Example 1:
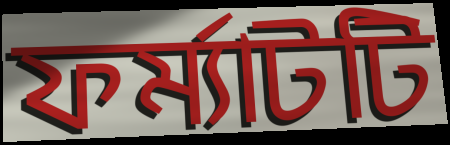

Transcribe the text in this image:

ফর্ম্যাটটি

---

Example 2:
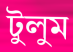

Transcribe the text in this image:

টুলুম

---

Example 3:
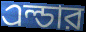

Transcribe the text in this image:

এল্ডার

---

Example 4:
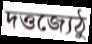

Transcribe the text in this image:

দত্তজ্যেঠু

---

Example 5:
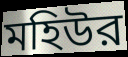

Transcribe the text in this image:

মহিউর